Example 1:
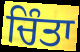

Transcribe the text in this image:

ਚਿੰਤਾ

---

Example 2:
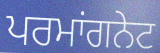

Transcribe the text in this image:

ਪਰਮਾਂਗਨੇਟ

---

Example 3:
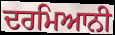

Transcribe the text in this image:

ਦਰਮਿਆਨੀ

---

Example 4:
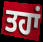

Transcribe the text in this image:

ਤਹਾਂ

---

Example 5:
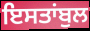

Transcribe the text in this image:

ਇਸਤਾਂਬੁਲ